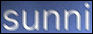
sunni